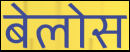
बेलोस